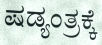
ಷಡ್ಯಂತ್ರಕ್ಕೆ